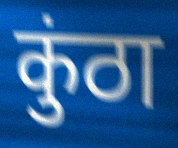
कुंठा